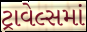
ટ્રાવેલ્સમાં